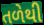
તળેથી